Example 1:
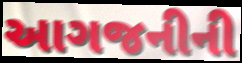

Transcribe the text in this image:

આગજનીની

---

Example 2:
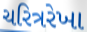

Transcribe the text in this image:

ચરિત્રરેખા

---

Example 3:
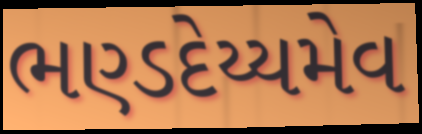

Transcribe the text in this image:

ભણ્ડદેય્યમેવ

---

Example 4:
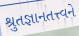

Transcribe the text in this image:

શ્રુતજ્ઞાનતત્ત્વને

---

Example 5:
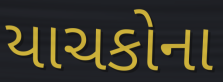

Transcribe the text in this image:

યાચકોના